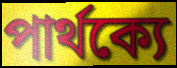
পার্থক্যে